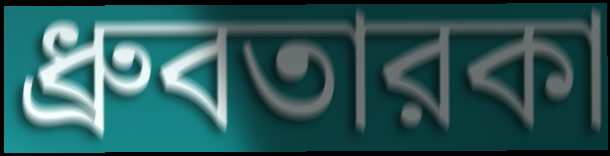
ধ্রুবতারকা